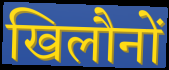
खिलौनों